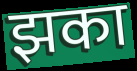
झका